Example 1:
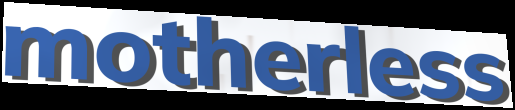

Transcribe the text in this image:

motherless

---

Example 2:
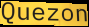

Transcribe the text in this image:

Quezon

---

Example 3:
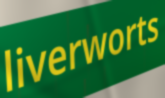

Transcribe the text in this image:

liverworts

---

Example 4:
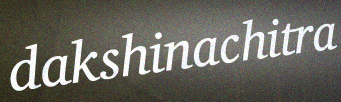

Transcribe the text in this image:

dakshinachitra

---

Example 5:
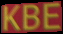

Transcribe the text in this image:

KBE